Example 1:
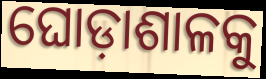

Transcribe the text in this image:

ଘୋଡ଼ାଶାଳକୁ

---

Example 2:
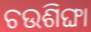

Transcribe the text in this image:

ଚଉଶିଙ୍ଘା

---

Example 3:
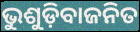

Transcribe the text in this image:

ଭୁଶୁଡ଼ିବାଜନିତ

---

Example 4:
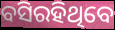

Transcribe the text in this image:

ବସିରହିଥିବେ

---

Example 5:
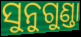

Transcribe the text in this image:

ସୁନୁଗୁଣ୍ଡା